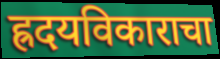
ह्रदयविकाराचा